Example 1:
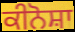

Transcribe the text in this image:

ਕੀਨੋਸ਼ਾ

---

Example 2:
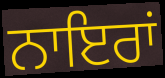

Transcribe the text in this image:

ਨਾਇਰਾਂ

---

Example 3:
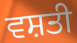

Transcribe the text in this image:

ਵਸ਼ਤੀ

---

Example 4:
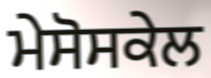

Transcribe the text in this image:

ਮੇਸੋਸਕੇਲ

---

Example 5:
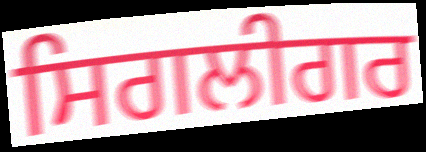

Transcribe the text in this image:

ਸਿਗਲੀਗਰ